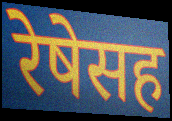
रेषेसह